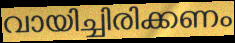
വായിച്ചിരിക്കണം